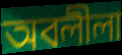
অবলীলা